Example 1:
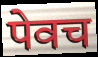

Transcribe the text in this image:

पेवच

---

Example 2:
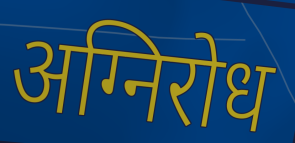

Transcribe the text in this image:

अग्निरोध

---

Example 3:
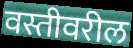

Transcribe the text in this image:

वस्तीवरील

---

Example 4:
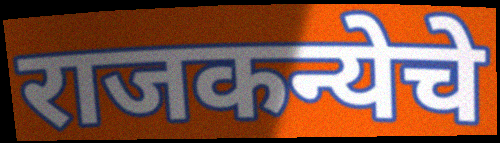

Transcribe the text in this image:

राजकन्येचे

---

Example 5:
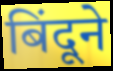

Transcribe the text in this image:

बिंदूने